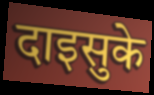
दाइसुके